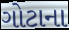
ગોટાના